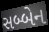
સબ્બેન